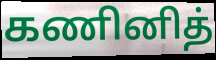
கணினித்